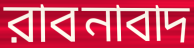
রাবনাবাদ